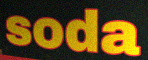
soda